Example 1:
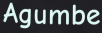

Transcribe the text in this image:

Agumbe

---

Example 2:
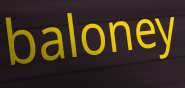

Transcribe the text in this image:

baloney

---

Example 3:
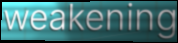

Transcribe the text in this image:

weakening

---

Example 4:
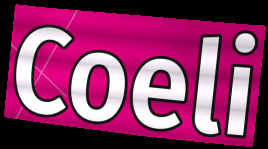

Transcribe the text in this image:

Coeli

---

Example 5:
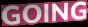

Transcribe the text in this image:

GOING